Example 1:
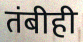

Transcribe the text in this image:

तंबीही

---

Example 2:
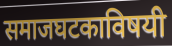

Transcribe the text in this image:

समाजघटकाविषयी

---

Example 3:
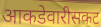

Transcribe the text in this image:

आकडेवारीसकट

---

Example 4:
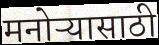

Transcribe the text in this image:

मनोऱ्यासाठी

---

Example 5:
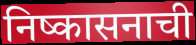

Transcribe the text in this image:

निष्कासनाची